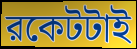
রকেটটাই